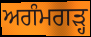
ਅਗੰਮਗੜ੍ਹ